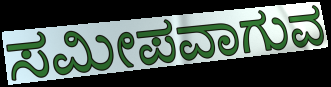
ಸಮೀಪವಾಗುವ